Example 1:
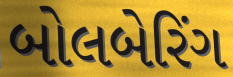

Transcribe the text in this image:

બોલબેરિંગ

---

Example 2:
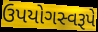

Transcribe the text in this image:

ઉપયોગસ્વરૂપે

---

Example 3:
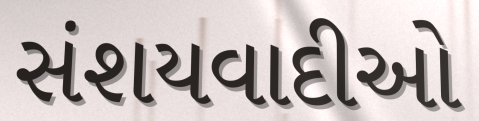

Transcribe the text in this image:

સંશયવાદીઓ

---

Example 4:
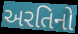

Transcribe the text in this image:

અરતિનો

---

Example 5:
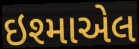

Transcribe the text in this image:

ઇશ્માએલ